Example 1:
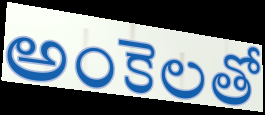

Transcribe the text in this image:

అంకెలతో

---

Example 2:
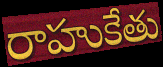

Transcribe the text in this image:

రాహుకేతు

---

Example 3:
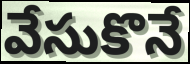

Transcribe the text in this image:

వేసుకొనే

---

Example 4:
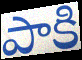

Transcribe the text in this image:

పాకి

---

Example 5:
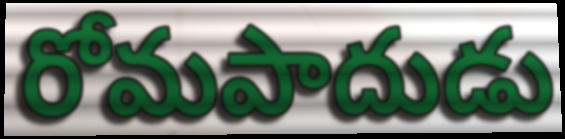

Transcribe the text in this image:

రోమపాదుడు